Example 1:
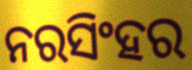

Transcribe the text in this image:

ନରସିଂହର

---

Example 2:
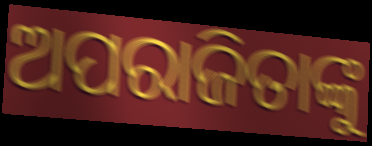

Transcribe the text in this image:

ଅପରାଜିତାଙ୍କୁ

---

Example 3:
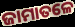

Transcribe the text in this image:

ଜାମାତଳେ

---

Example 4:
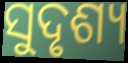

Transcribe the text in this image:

ସୁଦୃଶ୍ଯ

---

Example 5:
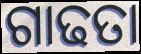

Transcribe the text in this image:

ଗାଢତା